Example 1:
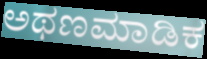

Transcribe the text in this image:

ಅಥಣಮಾಡಿಕ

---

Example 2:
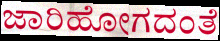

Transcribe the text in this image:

ಜಾರಿಹೋಗದಂತೆ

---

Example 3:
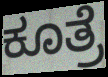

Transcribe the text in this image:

ಕೂತ್ರೆ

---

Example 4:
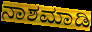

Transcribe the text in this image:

ನಾಶಮಾಡಿ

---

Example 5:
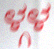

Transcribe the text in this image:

ಳ್ಗಳ